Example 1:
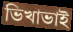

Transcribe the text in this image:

ভিখাভাই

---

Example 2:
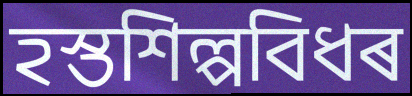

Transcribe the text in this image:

হস্তশিল্পবিধৰ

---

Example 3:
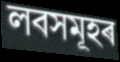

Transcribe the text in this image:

লবসমূহৰ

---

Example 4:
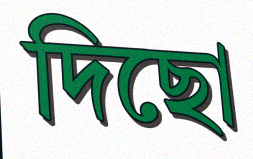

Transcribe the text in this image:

দিছো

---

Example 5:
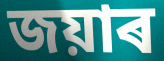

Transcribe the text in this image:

জয়াৰ